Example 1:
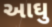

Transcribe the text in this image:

આઘુ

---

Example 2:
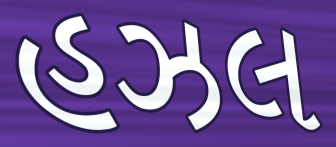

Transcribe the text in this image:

હઝલ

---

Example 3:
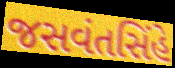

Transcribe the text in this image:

જસવંતસિંહે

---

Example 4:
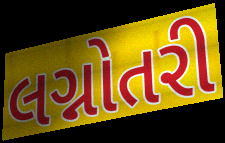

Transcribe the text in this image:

લગ્નોતરી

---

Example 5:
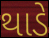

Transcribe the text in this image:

થાડે